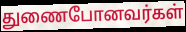
துணைபோனவர்கள்